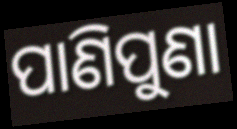
ପାଣିପୁଣା